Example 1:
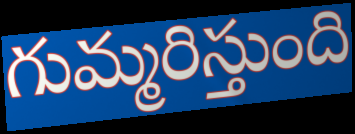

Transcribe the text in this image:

గుమ్మరిస్తుంది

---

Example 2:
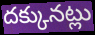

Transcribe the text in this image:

దక్కునట్లు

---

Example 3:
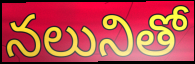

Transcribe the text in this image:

నలునితో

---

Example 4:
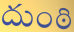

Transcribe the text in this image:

దుంఠి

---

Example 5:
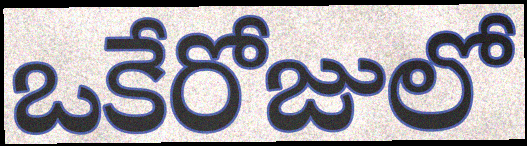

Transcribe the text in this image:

ఒకేరోజులో